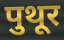
पुथूर